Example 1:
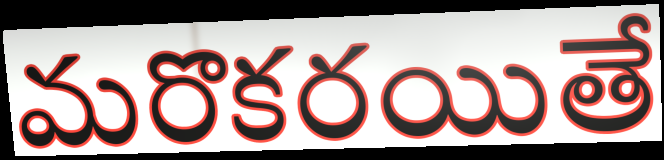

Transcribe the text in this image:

మరొకరయితే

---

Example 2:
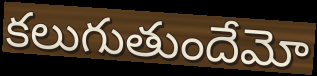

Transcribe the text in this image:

కలుగుతుందేమో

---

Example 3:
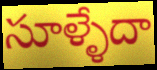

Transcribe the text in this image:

సూళ్ళేదా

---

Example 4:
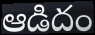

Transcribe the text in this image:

ఆడిదం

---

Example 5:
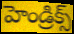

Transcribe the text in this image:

హెండ్రిక్స్